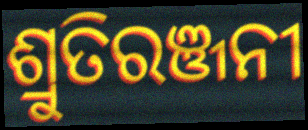
ଶ୍ରୁତିରଞ୍ଜନୀ